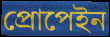
প্রোপেইন